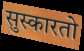
सुस्कारतो